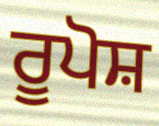
ਰੂਪੋਸ਼